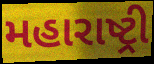
મહારાષ્ટ્રી